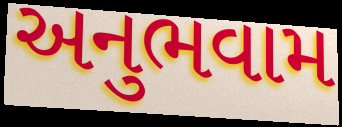
અનુભવામ